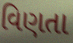
વિણતા